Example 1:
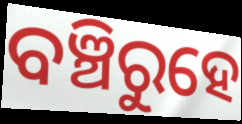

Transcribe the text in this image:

ବଞ୍ଚିରୁହେ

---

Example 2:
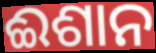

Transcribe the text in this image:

ଈଶାନ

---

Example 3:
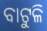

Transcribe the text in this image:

ବାଟୁଳି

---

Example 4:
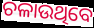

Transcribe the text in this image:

ଚଳାଉଥିବେ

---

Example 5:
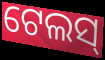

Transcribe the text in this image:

ଟେଲସ୍